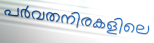
പർവതനിരകളിലെ